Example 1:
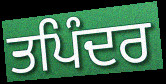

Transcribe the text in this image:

ਤਪਿੰਦਰ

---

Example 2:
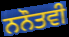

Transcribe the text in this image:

ਨਨੌਤਵੀ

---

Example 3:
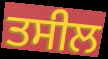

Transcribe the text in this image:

ਤਸੀਲ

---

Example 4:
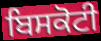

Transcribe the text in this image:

ਬਿਸਕੋਟੀ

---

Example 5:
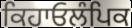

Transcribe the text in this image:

ਕਿਹਾਓਲੰਪਿਕ